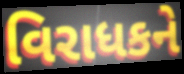
વિરાધકને